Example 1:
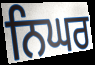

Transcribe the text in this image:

ਨਿਘਰ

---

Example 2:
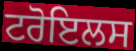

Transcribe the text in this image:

ਟਰੋਇਲਸ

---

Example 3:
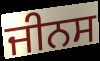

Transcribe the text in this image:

ਜੀਨਸ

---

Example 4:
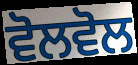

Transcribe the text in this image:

ਵੋਲਵੋਲ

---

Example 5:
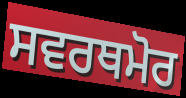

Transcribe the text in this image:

ਸਵਰਥਮੋਰ